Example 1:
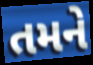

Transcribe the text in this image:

તમને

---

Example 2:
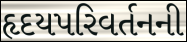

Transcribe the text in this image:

હૃદયપરિવર્તનની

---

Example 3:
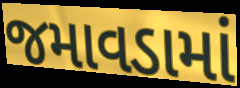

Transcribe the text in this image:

જમાવડામાં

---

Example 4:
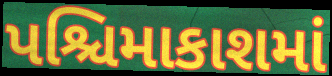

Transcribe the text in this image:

પશ્ચિમાકાશમાં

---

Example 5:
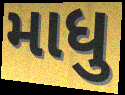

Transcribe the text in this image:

માધુ